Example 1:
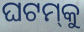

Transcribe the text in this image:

ଘଟମ୍‌କୁ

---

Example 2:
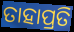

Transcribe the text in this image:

ତାହାପ୍ରତି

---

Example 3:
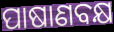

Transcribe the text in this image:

ପାଷାଣବକ୍ଷ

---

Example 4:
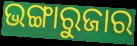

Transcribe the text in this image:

ଭଙ୍ଗାରୁଜାର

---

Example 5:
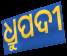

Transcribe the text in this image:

ଧ୍ରୁପଦୀ